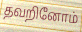
தவறினோம்